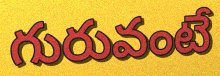
గురువంటే